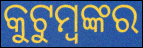
କୁଟୁମ୍ବଙ୍କର